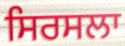
ਸਿਰਸਲਾ